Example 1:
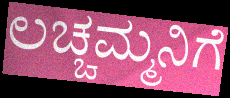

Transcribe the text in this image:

ಲಚ್ಚಮ್ಮನಿಗೆ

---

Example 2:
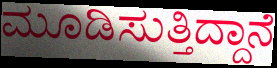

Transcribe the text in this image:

ಮೂಡಿಸುತ್ತಿದ್ದಾನೆ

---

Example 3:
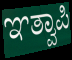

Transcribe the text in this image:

ಞತ್ವಾಪಿ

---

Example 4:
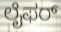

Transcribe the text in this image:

ಲೈಫರ್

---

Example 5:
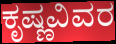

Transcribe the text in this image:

ಕೃಷ್ಣವಿವರ